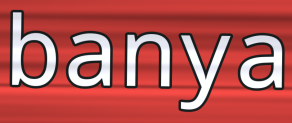
banya